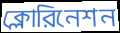
ক্লোরিনেশন